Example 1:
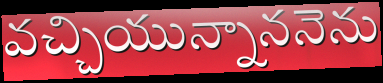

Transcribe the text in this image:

వచ్చియున్నాననెను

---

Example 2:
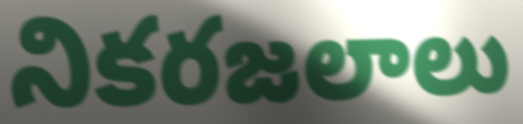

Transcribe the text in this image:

నికరజలాలు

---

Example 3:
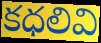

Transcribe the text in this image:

కధలివి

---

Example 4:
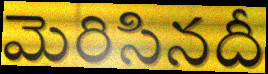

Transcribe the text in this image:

మెరిసినదీ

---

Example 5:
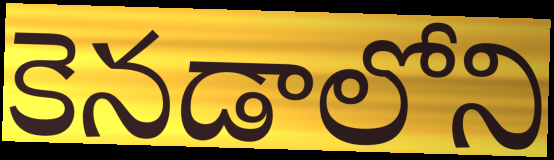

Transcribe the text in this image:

కెనడాలోని